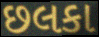
છલકા